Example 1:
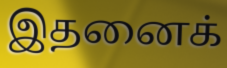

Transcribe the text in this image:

இதனைக்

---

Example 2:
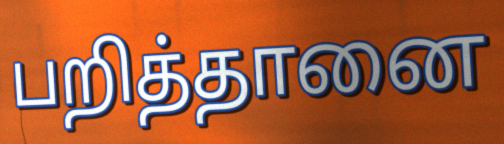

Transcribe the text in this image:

பறித்தானை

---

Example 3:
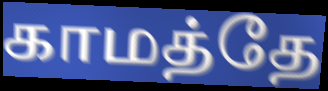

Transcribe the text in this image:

காமத்தே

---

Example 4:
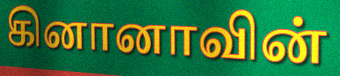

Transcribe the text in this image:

கினானாவின்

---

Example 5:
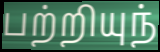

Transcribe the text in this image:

பற்றியுந்